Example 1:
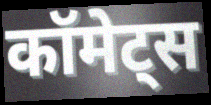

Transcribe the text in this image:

कॉमेट्स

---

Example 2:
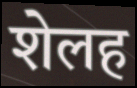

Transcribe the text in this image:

शेलह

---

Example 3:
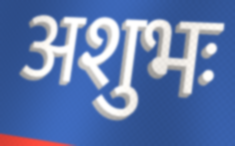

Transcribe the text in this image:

अशुभः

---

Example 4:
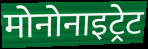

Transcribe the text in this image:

मोनोनाइट्रेट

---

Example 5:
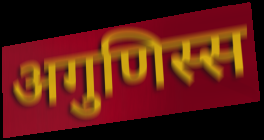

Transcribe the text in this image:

अगुणिस्स